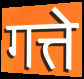
गत्ते